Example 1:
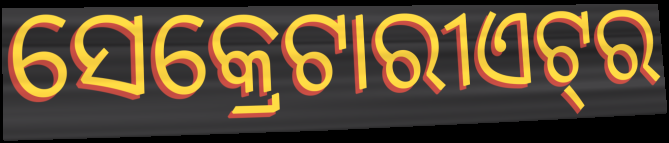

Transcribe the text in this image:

ସେକ୍ରେଟାରୀଏଟ୍‍ର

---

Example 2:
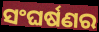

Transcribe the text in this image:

ସଂଘର୍ଷଣର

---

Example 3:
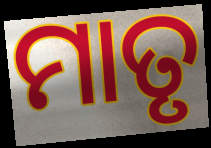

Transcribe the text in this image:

ମାତୃ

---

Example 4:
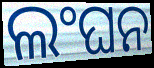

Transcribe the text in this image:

ଲଂଘନ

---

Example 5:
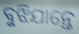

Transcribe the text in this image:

ବୁଝିଯାନ୍ତେ